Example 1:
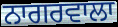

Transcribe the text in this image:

ਨਾਗਰਵਾਲਾ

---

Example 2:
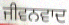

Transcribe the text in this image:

ਜੀਵਨਵਾਦ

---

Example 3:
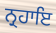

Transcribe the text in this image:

ਨ੍ਰਹਾਇ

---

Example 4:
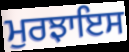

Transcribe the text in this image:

ਮੁਰਝਾਇਸ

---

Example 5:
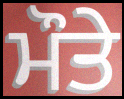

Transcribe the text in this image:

ਮੌਤੇ